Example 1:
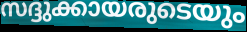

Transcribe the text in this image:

സദ്ദുക്കായരുടെയും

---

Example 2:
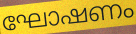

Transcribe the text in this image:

ഘോഷണം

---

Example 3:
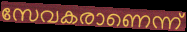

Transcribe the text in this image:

സേവകരാണെന്ന്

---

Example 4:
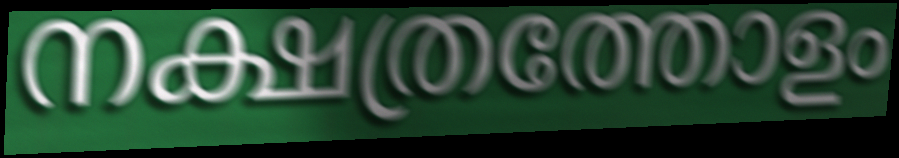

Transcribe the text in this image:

നക്ഷത്രത്തോളം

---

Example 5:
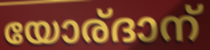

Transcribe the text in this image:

യോര്ദാന്